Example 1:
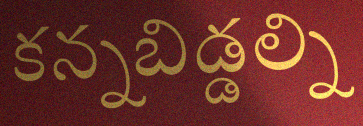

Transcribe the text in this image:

కన్నబిడ్డల్ని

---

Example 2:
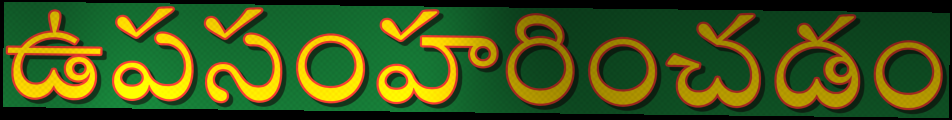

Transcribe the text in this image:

ఉపసంహరించడం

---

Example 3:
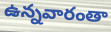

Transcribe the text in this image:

ఉన్నవారంతా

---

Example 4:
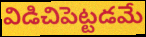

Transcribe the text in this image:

విడిచిపెట్టడమే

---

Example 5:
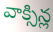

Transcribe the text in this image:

వాక్సిన్ల